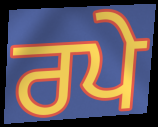
ਰਪੇ